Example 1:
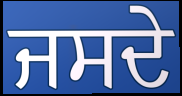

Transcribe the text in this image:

ਜਸਦੇ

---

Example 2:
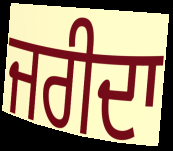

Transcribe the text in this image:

ਜਰੀਦਾ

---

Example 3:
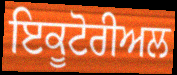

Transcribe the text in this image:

ਇਕੂਟੋਰੀਅਲ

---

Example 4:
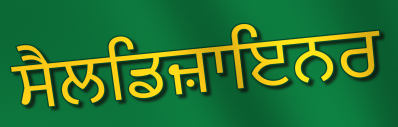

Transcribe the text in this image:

ਸੈਲਡਿਜ਼ਾਇਨਰ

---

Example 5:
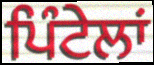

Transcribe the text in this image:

ਪਿੰਟੇਲਾਂ